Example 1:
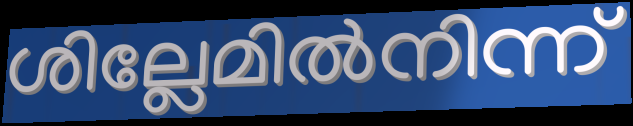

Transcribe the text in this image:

ശില്ലേമിൽനിന്ന്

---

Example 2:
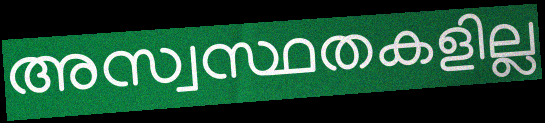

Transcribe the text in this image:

അസ്വസ്ഥതകളില്ല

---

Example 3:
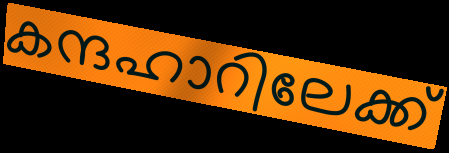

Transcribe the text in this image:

കന്ദഹാറിലേക്ക്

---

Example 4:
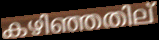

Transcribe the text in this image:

കഴിഞ്ഞതില്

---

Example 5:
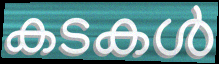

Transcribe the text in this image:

കടകൾ